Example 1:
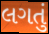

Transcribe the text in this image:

લગતું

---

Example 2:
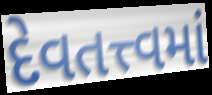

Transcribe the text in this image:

દેવતત્ત્વમાં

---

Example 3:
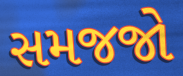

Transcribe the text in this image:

સમજજો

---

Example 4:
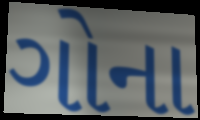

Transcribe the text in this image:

ગોના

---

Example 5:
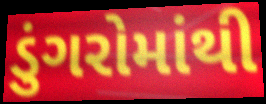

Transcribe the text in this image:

ડુંગરોમાંથી